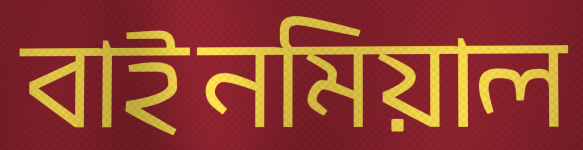
বাইনমিয়াল